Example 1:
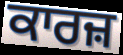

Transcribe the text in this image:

ਕਾਰਜ਼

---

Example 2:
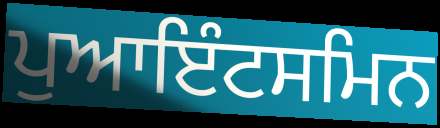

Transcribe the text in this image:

ਪੁਆਇੰਟਸਮਿਨ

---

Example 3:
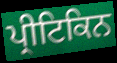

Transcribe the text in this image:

ਪ੍ਰੀਟਿਕਿਨ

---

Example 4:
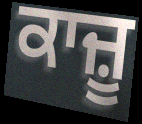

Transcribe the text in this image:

ਕਾਜ਼ੂ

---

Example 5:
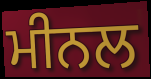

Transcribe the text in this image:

ਮੀਨਲ